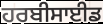
ਹਰਬੀਸਾਈਡ